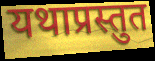
यथाप्रस्तुत